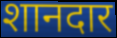
शानदार